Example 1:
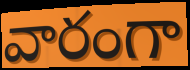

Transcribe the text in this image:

వారంగా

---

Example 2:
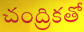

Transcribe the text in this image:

చంద్రికతో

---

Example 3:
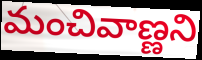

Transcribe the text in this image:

మంచివాణ్ణని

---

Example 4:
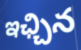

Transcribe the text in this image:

ఇఛ్చిన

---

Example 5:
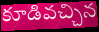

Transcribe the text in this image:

కూడివచ్చిన